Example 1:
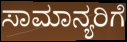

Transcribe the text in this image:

ಸಾಮಾನ್ಯರಿಗೆ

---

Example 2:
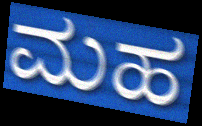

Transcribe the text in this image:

ಮಹ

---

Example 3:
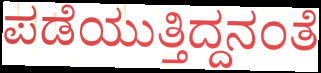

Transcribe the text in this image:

ಪಡೆಯುತ್ತಿದ್ದನಂತೆ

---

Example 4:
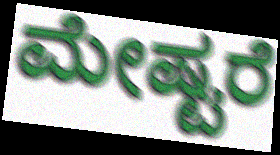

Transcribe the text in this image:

ಮೇಷ್ಟರೆ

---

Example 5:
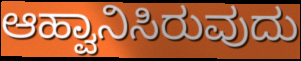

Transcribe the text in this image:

ಆಹ್ವಾನಿಸಿರುವುದು